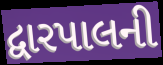
દ્વારપાલની